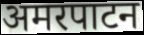
अमरपाटन